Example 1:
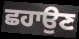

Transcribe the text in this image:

ਛਹਾਉਣ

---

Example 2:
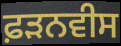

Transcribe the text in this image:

ਫ਼ੜਨਵੀਸ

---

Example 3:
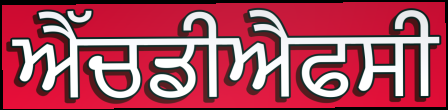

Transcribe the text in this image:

ਐੱਚਡੀਐਫਸੀ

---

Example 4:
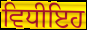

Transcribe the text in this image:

ਵਿਧੀਇਹ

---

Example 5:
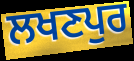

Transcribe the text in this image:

ਲਖਣਪੁਰ